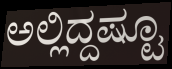
ಅಲ್ಲಿದ್ದಷ್ಟೂ